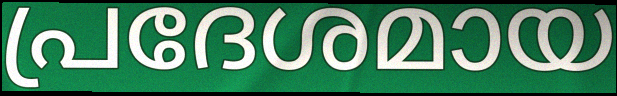
പ്രദേശമായ